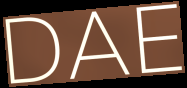
DAE